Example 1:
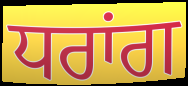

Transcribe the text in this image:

ਧਰਾਂਗ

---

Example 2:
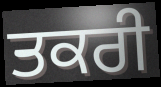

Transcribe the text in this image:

ਤਕਰੀ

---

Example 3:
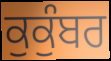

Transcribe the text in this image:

ਕੁਕੁੰਬਰ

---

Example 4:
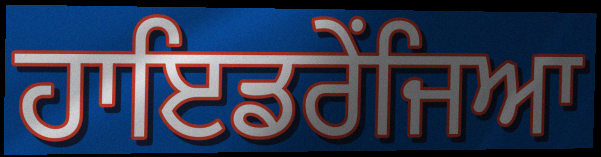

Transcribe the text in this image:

ਹਾਇਡਰੇਂਜਿਆ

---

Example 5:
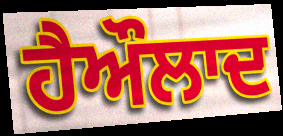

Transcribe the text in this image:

ਹੈਔਲਾਦ